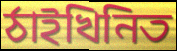
ঠাইখিনিত